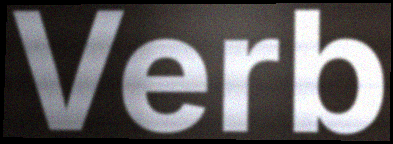
Verb